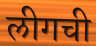
लीगची